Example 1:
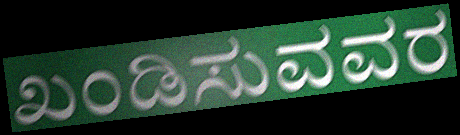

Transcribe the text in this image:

ಖಂಡಿಸುವವರ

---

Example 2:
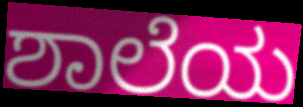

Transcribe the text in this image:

ಶಾಲೆಯ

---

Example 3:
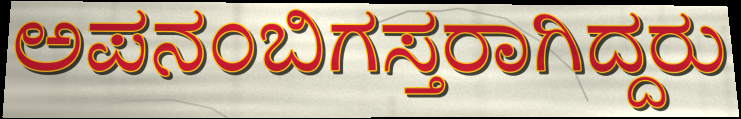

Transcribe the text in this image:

ಅಪನಂಬಿಗಸ್ತರಾಗಿದ್ದರು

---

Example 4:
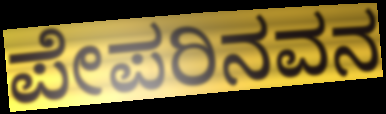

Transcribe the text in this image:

ಪೇಪರಿನವನ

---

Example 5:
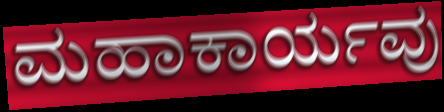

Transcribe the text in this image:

ಮಹಾಕಾರ್ಯವು